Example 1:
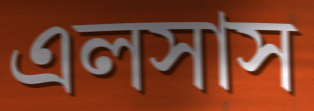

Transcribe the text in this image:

এলসাস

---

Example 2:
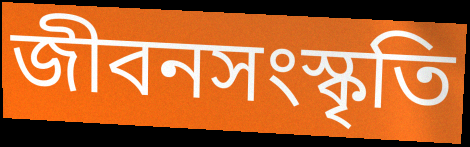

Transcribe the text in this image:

জীবনসংস্কৃতি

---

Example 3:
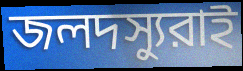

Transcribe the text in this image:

জলদস্যুরাই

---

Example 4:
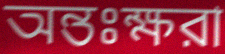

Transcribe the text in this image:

অন্তঃক্ষরা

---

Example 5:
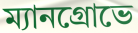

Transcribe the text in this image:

ম্যানগ্রোভে